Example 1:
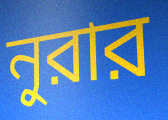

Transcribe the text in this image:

নুরার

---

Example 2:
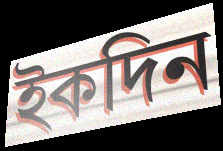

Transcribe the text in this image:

ইকদিন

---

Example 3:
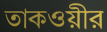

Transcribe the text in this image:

তাকওয়ীর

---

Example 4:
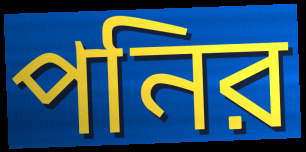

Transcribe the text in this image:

পনির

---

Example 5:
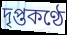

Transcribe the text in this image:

দৃপ্তকণ্ঠে